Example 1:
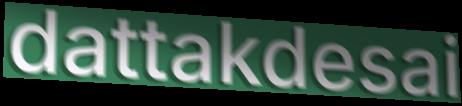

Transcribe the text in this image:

dattakdesai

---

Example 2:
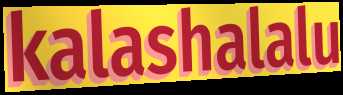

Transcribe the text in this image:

kalashalalu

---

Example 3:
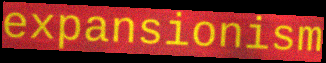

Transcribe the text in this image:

expansionism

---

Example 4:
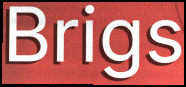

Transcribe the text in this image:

Brigs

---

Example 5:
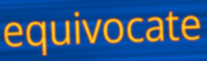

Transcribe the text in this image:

equivocate